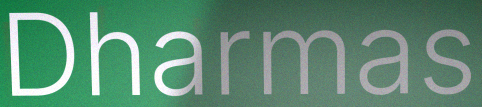
Dharmas